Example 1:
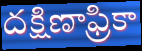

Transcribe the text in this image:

దక్షిణాఫ్రికా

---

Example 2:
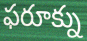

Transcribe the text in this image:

ఫరూక్ను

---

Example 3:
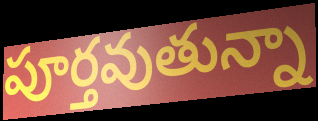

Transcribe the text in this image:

పూర్తవుతున్నా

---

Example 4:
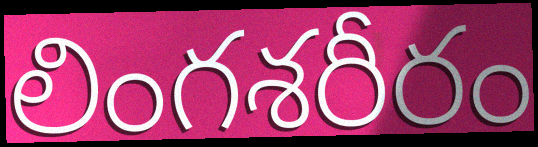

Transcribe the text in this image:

లింగశరీరం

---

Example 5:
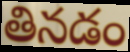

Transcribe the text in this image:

తినడం